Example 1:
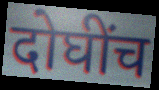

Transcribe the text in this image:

दोघींच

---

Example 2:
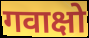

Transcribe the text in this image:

गवाक्षो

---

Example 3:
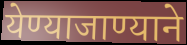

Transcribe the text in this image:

येण्याजाण्याने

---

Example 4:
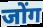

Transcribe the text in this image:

जोंग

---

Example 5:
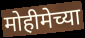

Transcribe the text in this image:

मोहीमेच्या